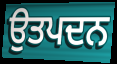
ਉਤਪਦਨ